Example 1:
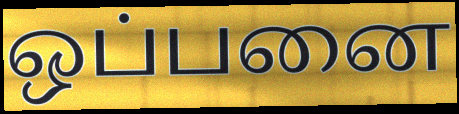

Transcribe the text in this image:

ஒப்பனை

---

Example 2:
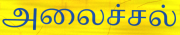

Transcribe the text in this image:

அலைச்சல்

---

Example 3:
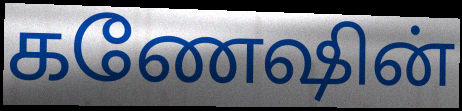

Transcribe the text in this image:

கணேஷின்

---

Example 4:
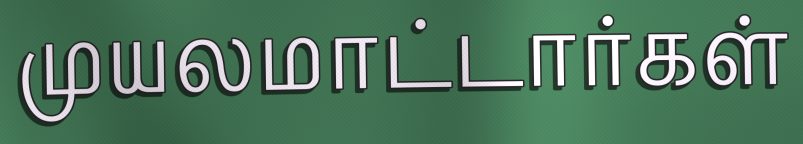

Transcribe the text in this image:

முயலமாட்டார்கள்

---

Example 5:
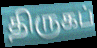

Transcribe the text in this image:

திருகப்